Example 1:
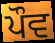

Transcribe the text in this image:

ਪੌਵ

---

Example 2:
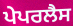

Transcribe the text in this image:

ਪੇਪਰਲੈਸ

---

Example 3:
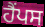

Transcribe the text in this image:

ਹੈਂਪਸ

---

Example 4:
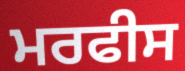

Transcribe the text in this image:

ਮਰਫੀਸ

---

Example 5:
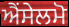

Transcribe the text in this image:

ਐਂਸੇਲਮੋ